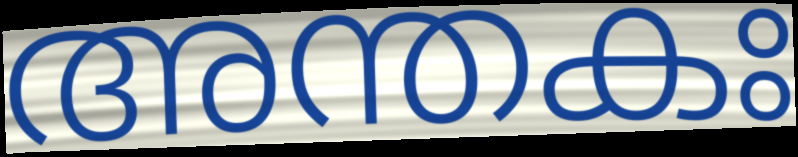
അന്തകഃ